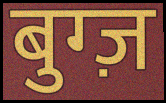
बुग्ज़